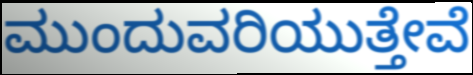
ಮುಂದುವರಿಯುತ್ತೇವೆ